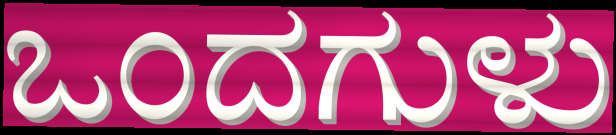
ಒಂದಗುಳು